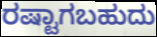
ರಷ್ಟಾಗಬಹುದು